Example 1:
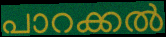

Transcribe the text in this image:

പാറക്കൽ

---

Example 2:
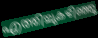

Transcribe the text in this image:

എത്തിച്ചുകഴിഞ്ഞു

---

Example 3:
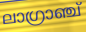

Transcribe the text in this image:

ലാഗ്രാഞ്ച്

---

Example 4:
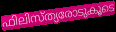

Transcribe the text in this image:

ഫിലിസ്ത്യരോടുകൂടെ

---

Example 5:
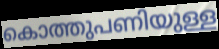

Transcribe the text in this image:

കൊത്തുപണിയുള്ള